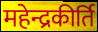
महेन्द्रकीर्ति